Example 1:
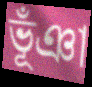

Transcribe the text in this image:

ভূঁঞা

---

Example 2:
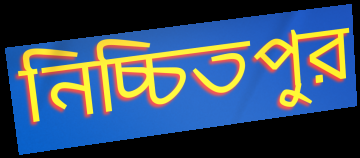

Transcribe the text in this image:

নিচ্চিতপুর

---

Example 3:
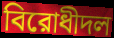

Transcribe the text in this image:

বিরোধীদল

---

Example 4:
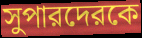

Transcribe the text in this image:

সুপারদেরকে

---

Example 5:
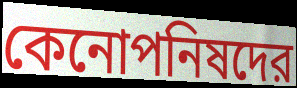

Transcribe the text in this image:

কেনোপনিষদের